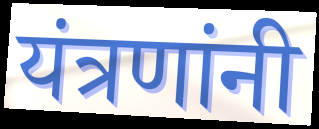
यंत्रणांनी